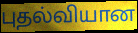
புதல்வியான